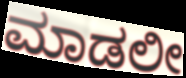
ಮಾಡಲೀ